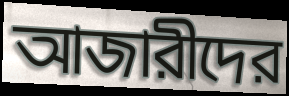
আজারীদের